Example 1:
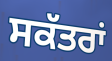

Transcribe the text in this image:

ਸਕੱਤਰਾਂ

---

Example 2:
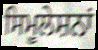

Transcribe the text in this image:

ਸਿਮੂਲੇਸ਼ਨਾਂ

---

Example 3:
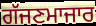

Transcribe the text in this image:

ਗੱਜਣਮਾਜਾਰ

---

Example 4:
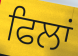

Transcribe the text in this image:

ਫਿਲਾਂ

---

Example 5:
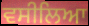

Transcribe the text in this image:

ਵਸੀਲਿਆ